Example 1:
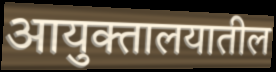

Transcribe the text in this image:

आयुक्तालयातील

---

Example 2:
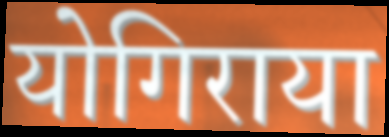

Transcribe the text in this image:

योगिराया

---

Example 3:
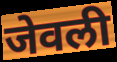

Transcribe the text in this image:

जेवली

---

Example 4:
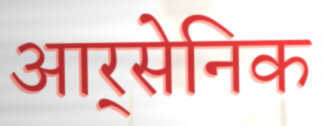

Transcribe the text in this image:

आर्सेनिक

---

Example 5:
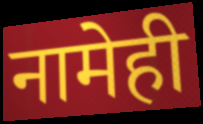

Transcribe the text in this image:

नामेही